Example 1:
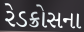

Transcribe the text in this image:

રેડક્રોસના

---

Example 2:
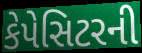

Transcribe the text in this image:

કેપેસિટરની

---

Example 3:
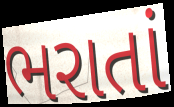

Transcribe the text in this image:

ભરાતાં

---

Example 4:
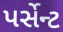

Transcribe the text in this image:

પર્સેન્ટ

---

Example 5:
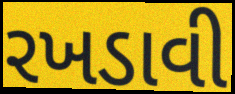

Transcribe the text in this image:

રખડાવી